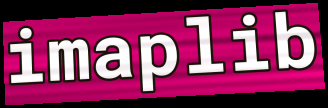
imaplib